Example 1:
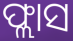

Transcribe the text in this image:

ଫ୍ଲାସ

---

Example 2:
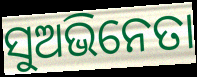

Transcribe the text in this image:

ସୁଅଭିନେତା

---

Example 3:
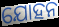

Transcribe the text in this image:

ଯୋହନ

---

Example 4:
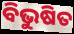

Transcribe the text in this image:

ବିଭୁଷିତ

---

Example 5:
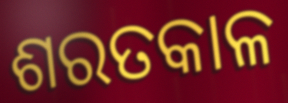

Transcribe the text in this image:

ଶରତକାଳ